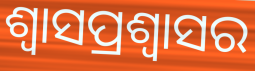
ଶ୍ଵାସପ୍ରଶ୍ଵାସର